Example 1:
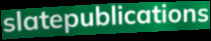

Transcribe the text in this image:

slatepublications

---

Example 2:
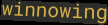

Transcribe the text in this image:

winnowing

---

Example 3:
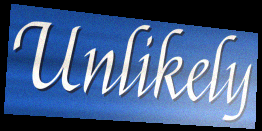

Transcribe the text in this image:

Unlikely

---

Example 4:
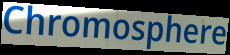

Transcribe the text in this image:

Chromosphere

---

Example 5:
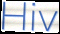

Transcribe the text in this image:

Hiv